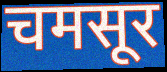
चमसूर